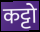
कट्टो